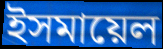
ইসমায়েল